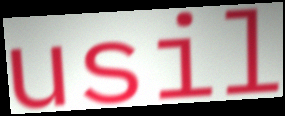
usil